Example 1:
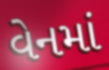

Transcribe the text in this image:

વેનમાં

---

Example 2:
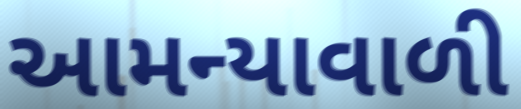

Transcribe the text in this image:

આમન્યાવાળી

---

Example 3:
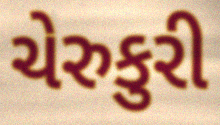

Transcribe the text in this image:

ચેરુકુરી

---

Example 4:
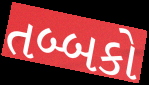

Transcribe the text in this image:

તબ્બકો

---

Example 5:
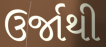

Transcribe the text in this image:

ઉર્જાથી